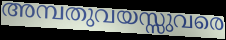
അമ്പതുവയസ്സുവരെ